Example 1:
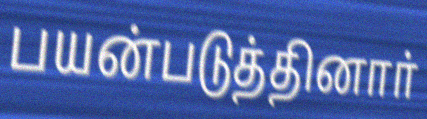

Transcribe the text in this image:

பயன்படுத்தினார்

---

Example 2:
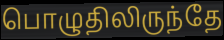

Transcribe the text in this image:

பொழுதிலிருந்தே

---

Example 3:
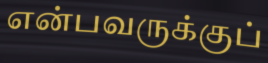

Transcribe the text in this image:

என்பவருக்குப்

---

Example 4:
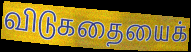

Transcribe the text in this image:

விடுகதையைக்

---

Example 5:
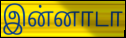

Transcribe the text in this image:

இன்னாடா